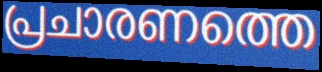
പ്രചാരണത്തെ